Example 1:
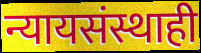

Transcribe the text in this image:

न्यायसंस्थाही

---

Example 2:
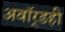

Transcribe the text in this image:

अवॉर्डही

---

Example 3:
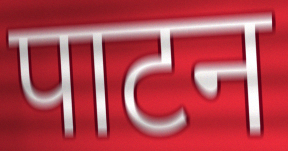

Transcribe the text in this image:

पाटन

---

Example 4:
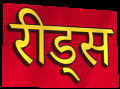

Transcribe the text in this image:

रीड्स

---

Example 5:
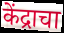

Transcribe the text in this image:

केंद्राचा